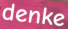
denke